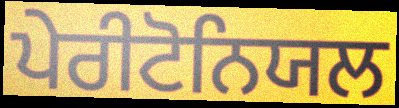
ਪੇਰੀਟੋਨਿਯਲ